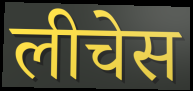
लीचेस